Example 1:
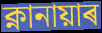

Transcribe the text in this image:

ক্নানায়াৰ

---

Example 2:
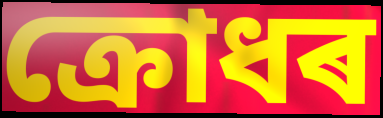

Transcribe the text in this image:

ক্ৰোধৰ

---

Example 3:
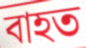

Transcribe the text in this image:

বাহত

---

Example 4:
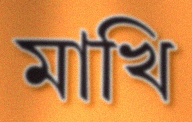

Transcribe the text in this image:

মাখি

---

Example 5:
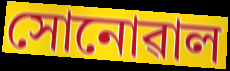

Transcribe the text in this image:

সোনোৱাল